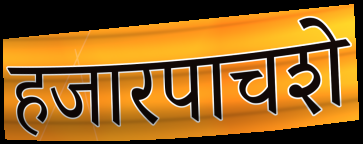
हजारपाचशे